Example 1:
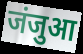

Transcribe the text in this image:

जंजुआ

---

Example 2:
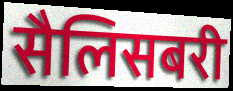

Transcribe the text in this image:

सैलिसबरी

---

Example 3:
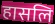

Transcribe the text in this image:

हासलि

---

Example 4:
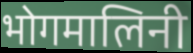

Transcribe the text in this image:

भोगमालिनी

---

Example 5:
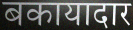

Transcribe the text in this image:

बकायादार